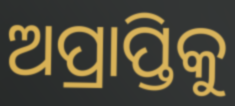
ଅପ୍ରାପ୍ତିକୁ